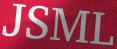
JSML